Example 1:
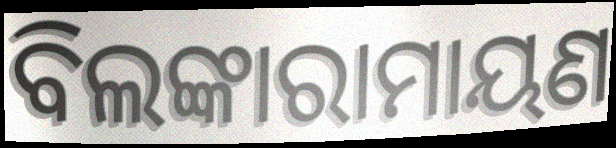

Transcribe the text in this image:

ବିଲଙ୍କାରାମାୟଣ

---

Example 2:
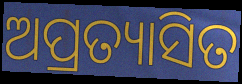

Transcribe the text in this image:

ଅପ୍ରତ୍ୟାସିତ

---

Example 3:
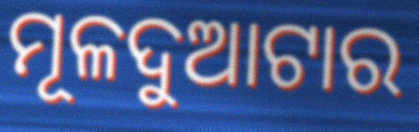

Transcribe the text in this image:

ମୂଳଦୁଆଟାର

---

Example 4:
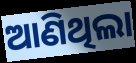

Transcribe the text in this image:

ଆଣିଥିଲା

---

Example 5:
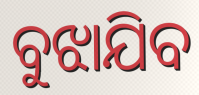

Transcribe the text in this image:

ବୁଝାଯିବ